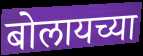
बोलायच्या